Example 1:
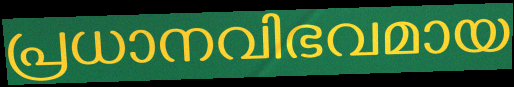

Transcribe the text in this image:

പ്രധാനവിഭവമായ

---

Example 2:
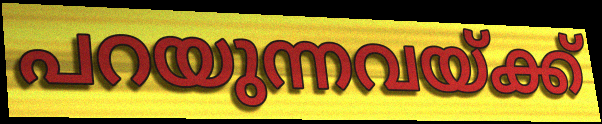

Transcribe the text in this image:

പറയുന്നവയ്ക്ക്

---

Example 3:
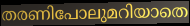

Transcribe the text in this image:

തരണിപോലുമറിയാതെ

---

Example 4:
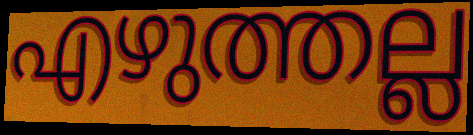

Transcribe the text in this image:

എഴുത്തല്ല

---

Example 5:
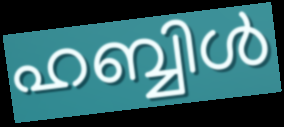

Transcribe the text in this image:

ഹബ്ബിൾ